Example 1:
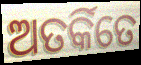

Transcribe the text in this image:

ଅତର୍କିତେ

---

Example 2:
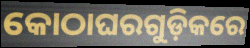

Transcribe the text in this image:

କୋଠାଘରଗୁଡ଼ିକରେ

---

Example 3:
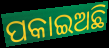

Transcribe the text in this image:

ପକାଇଅଛି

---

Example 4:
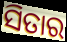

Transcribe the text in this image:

ସିତାର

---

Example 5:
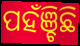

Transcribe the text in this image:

ପହଁଞ୍ଚିଛି